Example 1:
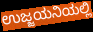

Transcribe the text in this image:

ಉಜ್ಜಯನಿಯಲ್ಲಿ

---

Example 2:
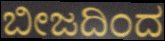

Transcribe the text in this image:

ಬೀಜದಿಂದ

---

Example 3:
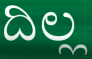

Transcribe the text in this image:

ದಿಲ್ಲ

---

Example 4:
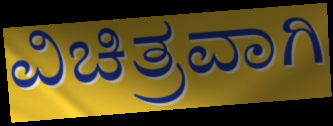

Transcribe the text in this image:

ವಿಚಿತ್ರವಾಗಿ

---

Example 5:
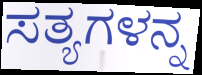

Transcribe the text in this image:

ಸತ್ಯಗಳನ್ನ